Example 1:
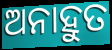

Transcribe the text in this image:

ଅନାହୁତ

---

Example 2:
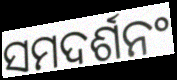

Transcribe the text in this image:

ସମଦର୍ଶନଂ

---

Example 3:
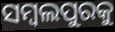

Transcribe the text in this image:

ସମ୍ୱଲପୁରକୁ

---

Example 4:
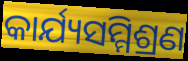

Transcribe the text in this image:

କାର୍ଯ୍ୟସମ୍ମିଶ୍ରଣ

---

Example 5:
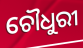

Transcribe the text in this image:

ଚୌଧୁରୀ